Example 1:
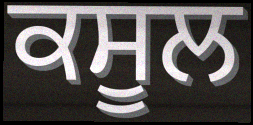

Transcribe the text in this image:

ਕਸੂਲ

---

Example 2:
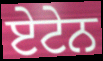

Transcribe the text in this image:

ਏਟੇਨ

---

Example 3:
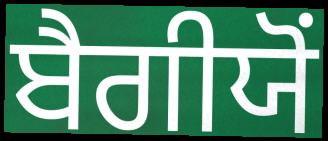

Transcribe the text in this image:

ਬੈਗੀਯੋਂ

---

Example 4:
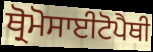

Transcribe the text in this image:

ਥ੍ਰੋਮੋਸਾਈਟੋਪੈਥੀ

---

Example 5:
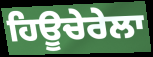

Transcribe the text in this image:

ਹਿਊਚੇਰੇਲਾ